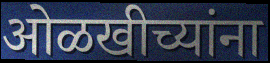
ओळखीच्यांना